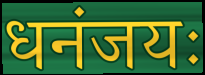
धनंजयः